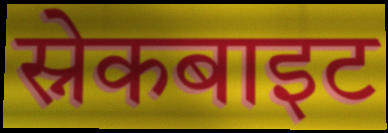
स्नेकबाइट